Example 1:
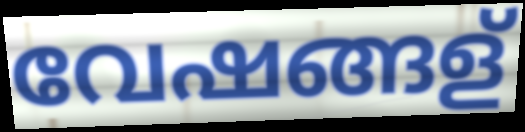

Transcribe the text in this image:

വേഷങ്ങള്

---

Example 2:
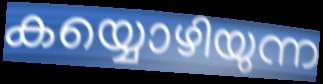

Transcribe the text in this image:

കയ്യൊഴിയുന്ന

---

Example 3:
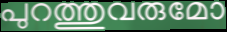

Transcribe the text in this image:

പുറത്തുവരുമോ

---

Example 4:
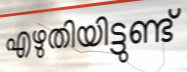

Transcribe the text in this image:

എഴുതിയിട്ടുണ്ട്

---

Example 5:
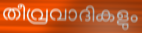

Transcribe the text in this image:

തീവ്രവാദികളും